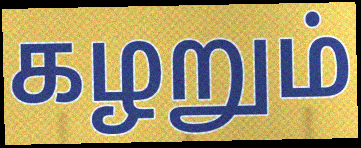
கழறும்